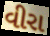
વીરા